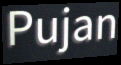
Pujan